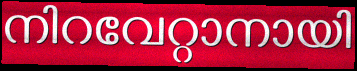
നിറവേറ്റാനായി